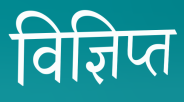
विज्ञिप्त